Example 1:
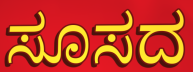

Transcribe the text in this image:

ಸೂಸದ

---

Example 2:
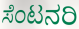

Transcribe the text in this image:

ಸೆಂಟನರಿ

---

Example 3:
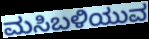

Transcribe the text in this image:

ಮಸಿಬಳಿಯುವ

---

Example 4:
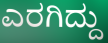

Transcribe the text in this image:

ಎರಗಿದ್ದು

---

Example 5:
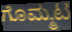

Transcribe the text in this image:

ಗೊಮ್ಮಟ